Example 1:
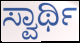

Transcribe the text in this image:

ಸ್ವಾರ್ಥಿ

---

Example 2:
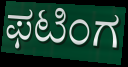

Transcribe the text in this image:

ಫಟಿಂಗ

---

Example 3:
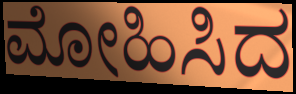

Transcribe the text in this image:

ಮೋಹಿಸಿದ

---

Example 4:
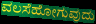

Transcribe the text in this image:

ವಲಸೆಹೋಗುವುದು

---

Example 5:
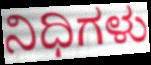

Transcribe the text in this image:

ನಿಧಿಗಳು